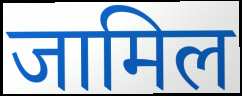
जामिल